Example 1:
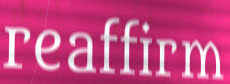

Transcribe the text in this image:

reaffirm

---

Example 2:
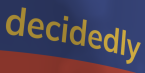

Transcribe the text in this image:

decidedly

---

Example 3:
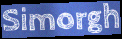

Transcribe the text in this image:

Simorgh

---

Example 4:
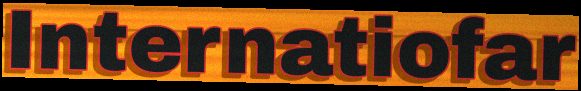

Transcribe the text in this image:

Internatiofar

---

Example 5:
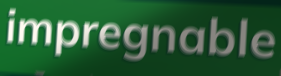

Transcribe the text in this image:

impregnable